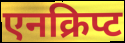
एनक्रिप्ट